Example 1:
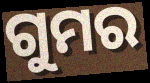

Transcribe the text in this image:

ଗୁମର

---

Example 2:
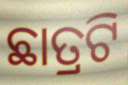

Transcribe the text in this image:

ଛାତ୍ରଟି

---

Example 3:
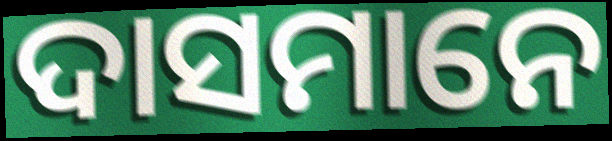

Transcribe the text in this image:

ଦାସମାନେ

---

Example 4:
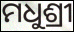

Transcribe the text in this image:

ମଧୁଶ୍ରୀ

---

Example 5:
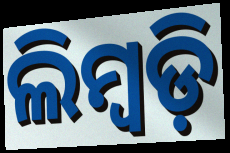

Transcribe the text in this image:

ଲିମ୍ବଡ଼ି